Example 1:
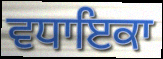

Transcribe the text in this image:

ਵਧਾਇਕਾ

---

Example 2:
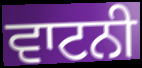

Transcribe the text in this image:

ਵਾਟਨੀ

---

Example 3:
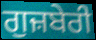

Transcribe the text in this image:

ਗੁਜ਼ਬੇਰੀ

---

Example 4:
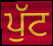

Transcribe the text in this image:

ਪੁੱਟ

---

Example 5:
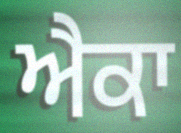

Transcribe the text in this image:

ਐਕਾ